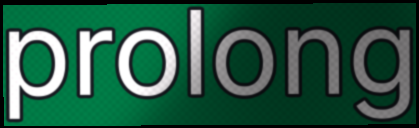
prolong